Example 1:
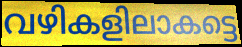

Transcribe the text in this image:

വഴികളിലാകട്ടെ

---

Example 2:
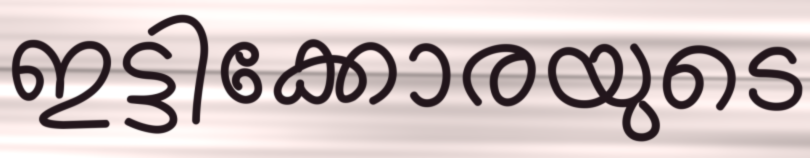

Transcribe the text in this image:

ഇട്ടിക്കോരയുടെ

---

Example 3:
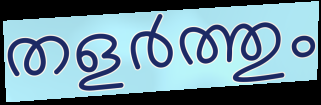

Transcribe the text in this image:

തളർത്തും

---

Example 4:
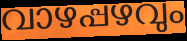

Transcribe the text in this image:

വാഴപ്പഴവും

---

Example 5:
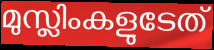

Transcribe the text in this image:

മുസ്ലിംകളുടേത്